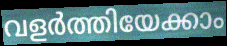
വളർത്തിയേക്കാം